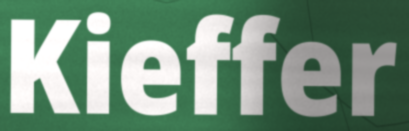
Kieffer